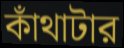
কাঁথাটার